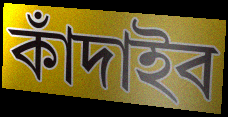
কাঁদাইব